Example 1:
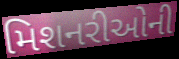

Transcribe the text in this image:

મિશનરીઓની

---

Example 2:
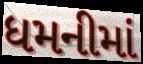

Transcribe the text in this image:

ધમનીમાં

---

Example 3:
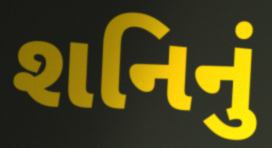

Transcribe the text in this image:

શનિનું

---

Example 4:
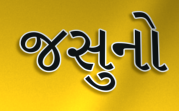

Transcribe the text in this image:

જસુનો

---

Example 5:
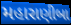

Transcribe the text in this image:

મહારાણીબા